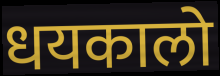
धयकालो